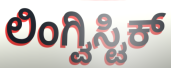
ಲಿಂಗ್ವಿಸ್ಟಿಕ್